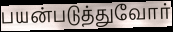
பயன்படுத்துவோர்